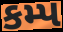
કમ્પ